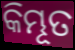
କିମ୍ଭୂତ